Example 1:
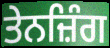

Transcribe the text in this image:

ਤੇਨਜ਼ਿੰਗ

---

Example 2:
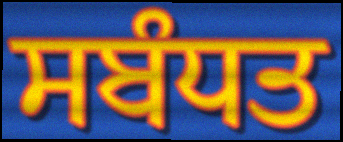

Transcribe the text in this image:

ਸਬੰਧਤ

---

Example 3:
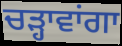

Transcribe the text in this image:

ਚੜ੍ਹਾਵਾਂਗਾ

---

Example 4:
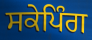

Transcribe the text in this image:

ਸਕੇਪਿੰਗ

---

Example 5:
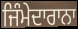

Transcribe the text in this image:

ਜਿੰਮੇਦਾਰਾਨਾ